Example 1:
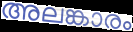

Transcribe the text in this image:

അലങ്കാരം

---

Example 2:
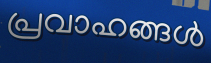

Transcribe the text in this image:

പ്രവാഹങ്ങൾ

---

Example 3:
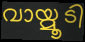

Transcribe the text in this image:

വായ്മൂടി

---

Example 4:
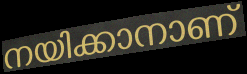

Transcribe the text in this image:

നയിക്കാനാണ്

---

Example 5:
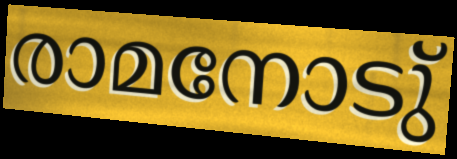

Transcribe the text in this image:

രാമനോടു്